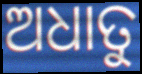
ଅଧାତୁ